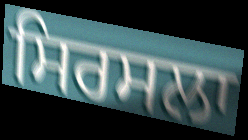
ਸਿਰਸਲਾ